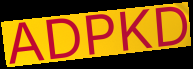
ADPKD